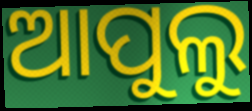
ଆପୁଲୁ